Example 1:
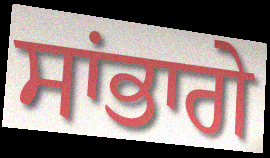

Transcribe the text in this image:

ਸਾਂਭਾਗੇ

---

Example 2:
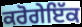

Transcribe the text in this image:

ਕਰੋਗੇਇੱਕ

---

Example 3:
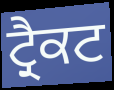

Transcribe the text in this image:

ਟ੍ਰੈਕਟ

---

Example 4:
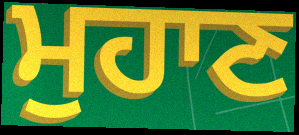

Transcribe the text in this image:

ਮੁਹਾਣ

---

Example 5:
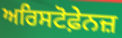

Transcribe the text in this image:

ਅਰਿਸਟੋਫ਼ੇਨਜ਼